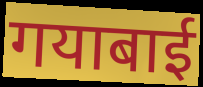
गयाबाई